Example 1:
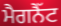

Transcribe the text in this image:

ਮੈਗਨੈੱਟ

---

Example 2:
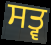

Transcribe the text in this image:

ਸਤ੍ਵ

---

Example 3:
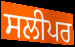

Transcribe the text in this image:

ਸਲੀਪਰ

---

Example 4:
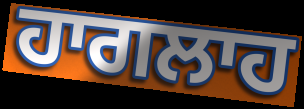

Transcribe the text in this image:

ਹਾਗਲਾਹ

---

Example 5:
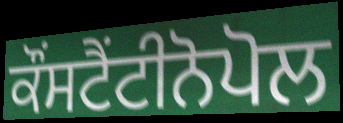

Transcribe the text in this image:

ਕੌਂਸਟੈਂਟੀਨੋਪੋਲ